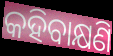
କହିବାକ୍ଷଣି